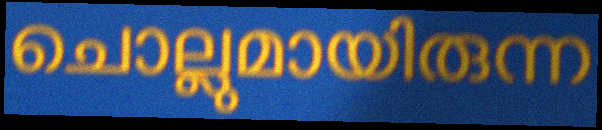
ചൊല്ലുമായിരുന്ന